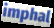
imphal